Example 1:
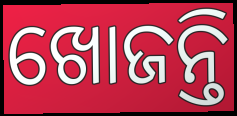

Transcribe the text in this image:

ଖୋଜନ୍ତି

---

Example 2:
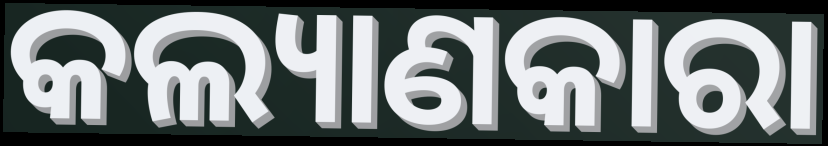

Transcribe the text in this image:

କଲ୍ୟାଣକାରା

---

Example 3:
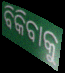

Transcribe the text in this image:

ବିକିବାକୁ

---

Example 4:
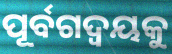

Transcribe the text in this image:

ପୂର୍ବଗଦ୍ଵୟକୁ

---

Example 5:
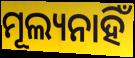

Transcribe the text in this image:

ମୂଲ୍ୟନାହିଁ